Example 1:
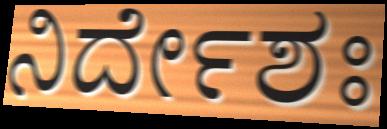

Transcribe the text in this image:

ನಿರ್ದೇಶಃ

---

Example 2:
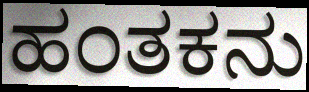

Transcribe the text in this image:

ಹಂತಕನು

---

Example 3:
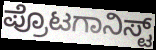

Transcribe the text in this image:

ಪ್ರೊಟಗಾನಿಸ್ಟ್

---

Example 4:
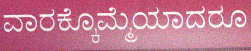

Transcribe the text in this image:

ವಾರಕ್ಕೊಮ್ಮೆಯಾದರೂ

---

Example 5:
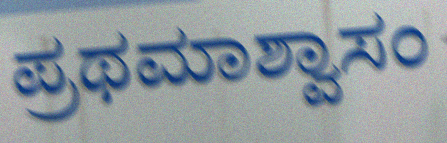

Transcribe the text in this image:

ಪ್ರಥಮಾಶ್ವಾಸಂ